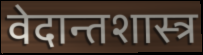
वेदान्तशास्त्र